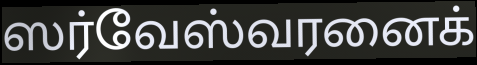
ஸர்வேஸ்வரனைக்